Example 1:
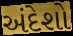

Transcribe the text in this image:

અંદેશો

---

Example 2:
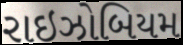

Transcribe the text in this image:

રાઇઝોબિયમ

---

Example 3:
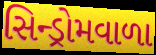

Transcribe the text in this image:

સિન્ડ્રોમવાળા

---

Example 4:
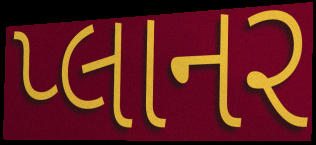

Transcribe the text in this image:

પ્લાનર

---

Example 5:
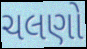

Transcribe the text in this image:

ચલણો